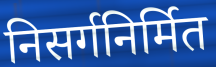
निसर्गनिर्मित